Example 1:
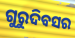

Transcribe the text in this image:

ଗୁରୁଦିବସର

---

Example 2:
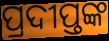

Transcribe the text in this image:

ପ୍ରଦୀପ୍ତଙ୍କ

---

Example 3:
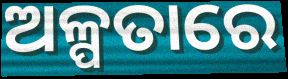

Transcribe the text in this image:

ଅଳ୍ପତାରେ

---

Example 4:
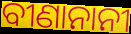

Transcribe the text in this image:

ବୀଣାନାନୀ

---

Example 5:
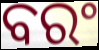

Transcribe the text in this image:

ବରଂ